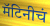
मॅटिनीचं